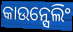
କାଉନ୍ସେଲିଂ